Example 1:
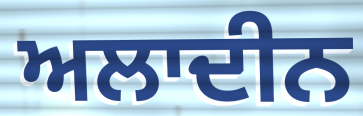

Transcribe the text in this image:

ਅਲਾਦੀਨ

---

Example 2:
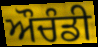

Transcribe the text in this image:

ਔਚੰਡੀ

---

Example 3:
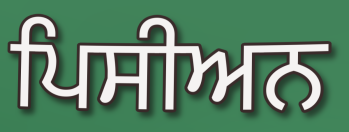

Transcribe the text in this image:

ਪਿਸੀਅਨ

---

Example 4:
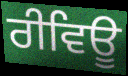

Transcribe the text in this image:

ਰੀਵਿਊ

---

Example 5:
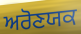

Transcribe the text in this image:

ਅਰੋਣਯਕ